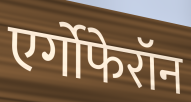
एर्गोफेरॉन